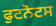
ਫੁਟਨੋਟਸ